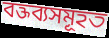
বক্তব্যসমূহত